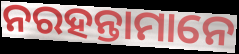
ନରହନ୍ତାମାନେ